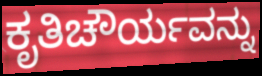
ಕೃತಿಚೌರ್ಯವನ್ನು